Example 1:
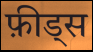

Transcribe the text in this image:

फ़ीड्स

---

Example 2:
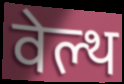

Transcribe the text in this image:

वेल्‍थ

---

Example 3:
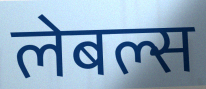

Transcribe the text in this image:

लेबल्स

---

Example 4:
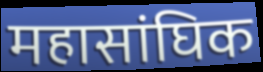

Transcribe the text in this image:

महासांघिक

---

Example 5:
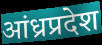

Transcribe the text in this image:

आंध्रप्रदेश